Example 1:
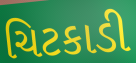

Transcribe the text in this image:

ચિટકાડી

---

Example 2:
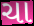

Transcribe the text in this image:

ચા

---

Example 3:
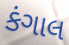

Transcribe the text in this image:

કંગાલ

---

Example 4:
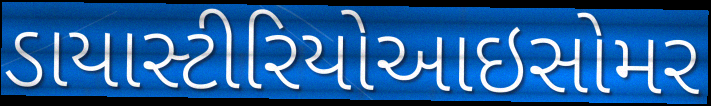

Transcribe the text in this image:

ડાયાસ્ટીરિયોઆઇસોમર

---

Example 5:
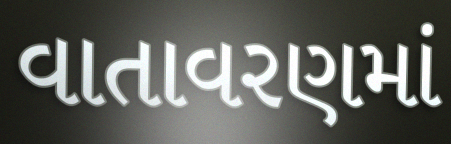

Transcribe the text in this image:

વાતાવરણમાં